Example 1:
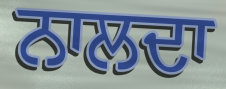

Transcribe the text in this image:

ਨਾਲਦਾ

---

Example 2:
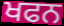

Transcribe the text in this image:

ਖਫਨ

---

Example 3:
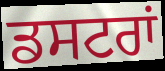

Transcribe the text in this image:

ਡਸਟਰਾਂ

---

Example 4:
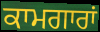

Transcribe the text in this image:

ਕਾਮਗਾਰਾਂ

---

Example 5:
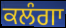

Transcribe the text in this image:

ਕਲੰਗਾ